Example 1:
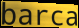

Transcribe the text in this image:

barca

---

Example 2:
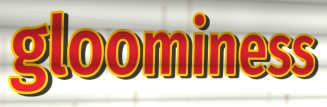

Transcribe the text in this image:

gloominess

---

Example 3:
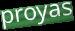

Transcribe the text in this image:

proyas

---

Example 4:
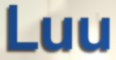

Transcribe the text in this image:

Luu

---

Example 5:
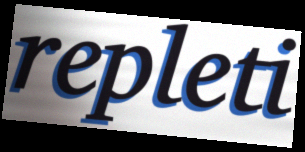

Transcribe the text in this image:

repleti